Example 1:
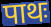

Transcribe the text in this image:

पाथः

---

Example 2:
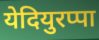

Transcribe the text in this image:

येदियुरप्पा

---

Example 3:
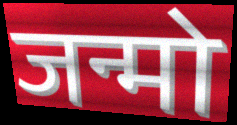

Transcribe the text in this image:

जन्मो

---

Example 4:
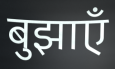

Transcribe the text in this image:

बुझाएँ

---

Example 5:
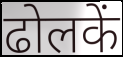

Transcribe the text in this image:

ढोलकें